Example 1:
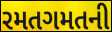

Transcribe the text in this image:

રમતગમતની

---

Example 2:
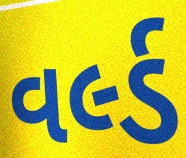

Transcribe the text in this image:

વર્લ્ડ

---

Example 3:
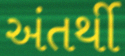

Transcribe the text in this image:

અંતર્થી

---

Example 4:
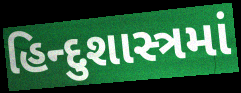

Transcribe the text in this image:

હિન્દુશાસ્ત્રમાં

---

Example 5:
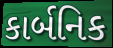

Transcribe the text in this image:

કાર્બનિક